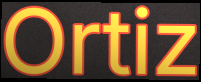
Ortiz